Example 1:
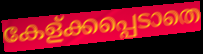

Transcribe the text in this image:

കേള്ക്കപ്പെടാതെ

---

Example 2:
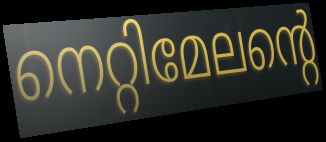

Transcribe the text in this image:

നെറ്റിമേലന്റെ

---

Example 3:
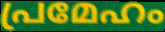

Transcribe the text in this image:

പ്രമേഹം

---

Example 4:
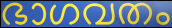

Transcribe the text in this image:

ഭാഗവതം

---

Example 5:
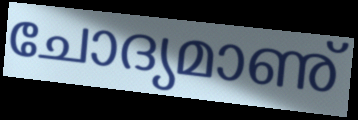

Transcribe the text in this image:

ചോദ്യമാണു്